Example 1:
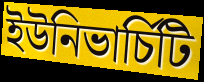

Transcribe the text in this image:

ইউনিভাৰ্চিটি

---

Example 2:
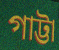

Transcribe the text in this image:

গাট্টা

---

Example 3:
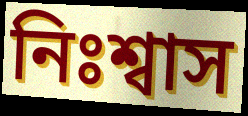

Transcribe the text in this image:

নিঃশ্বাস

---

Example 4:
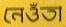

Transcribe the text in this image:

নেওঁতা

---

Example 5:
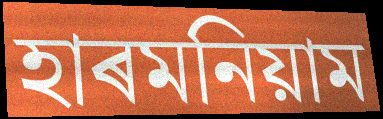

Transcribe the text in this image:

হাৰমনিয়াম